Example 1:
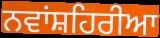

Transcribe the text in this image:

ਨਵਾਂਸ਼ਹਿਰੀਆ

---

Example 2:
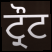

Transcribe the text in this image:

ਟ੍ਰੌਟ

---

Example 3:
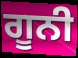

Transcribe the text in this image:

ਗੂਨੀ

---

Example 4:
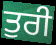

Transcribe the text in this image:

ਤੁਰੀ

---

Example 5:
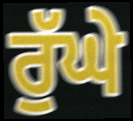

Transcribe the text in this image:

ਰੁੱਘੇ